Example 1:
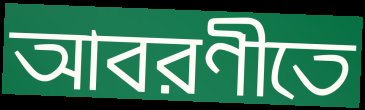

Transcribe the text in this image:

আবরণীতে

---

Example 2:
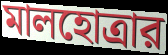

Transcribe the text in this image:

মালহোত্রার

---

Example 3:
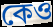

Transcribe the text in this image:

কেও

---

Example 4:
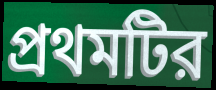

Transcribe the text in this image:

প্রথমটির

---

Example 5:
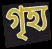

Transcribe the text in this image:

গৃহ্য